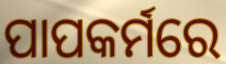
ପାପକର୍ମରେ